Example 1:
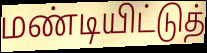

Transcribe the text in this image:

மண்டியிட்டுத்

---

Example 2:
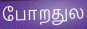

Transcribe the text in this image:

போறதுல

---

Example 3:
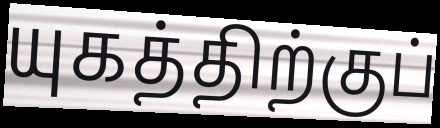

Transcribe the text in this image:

யுகத்திற்குப்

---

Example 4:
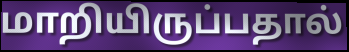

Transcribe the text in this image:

மாறியிருப்பதால்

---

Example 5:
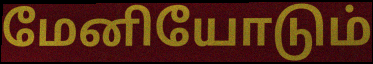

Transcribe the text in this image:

மேனியோடும்